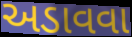
અડાવવા